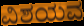
ವಿಶಯವ